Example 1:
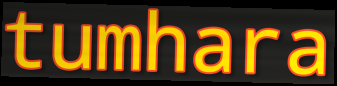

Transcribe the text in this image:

tumhara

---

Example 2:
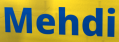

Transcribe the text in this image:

Mehdi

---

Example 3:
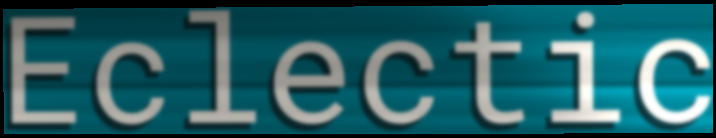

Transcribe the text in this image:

Eclectic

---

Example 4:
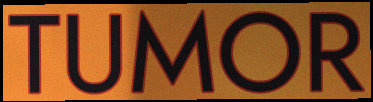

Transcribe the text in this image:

TUMOR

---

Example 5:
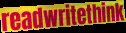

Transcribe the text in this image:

readwritethink